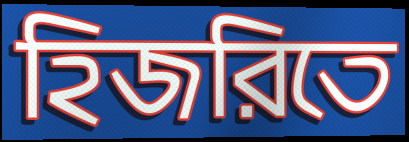
হিজরিতে